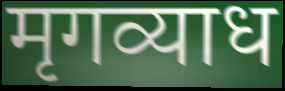
मृगव्याध